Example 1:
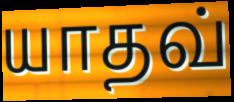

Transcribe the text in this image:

யாதவ்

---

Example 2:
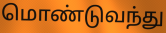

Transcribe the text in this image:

மொண்டுவந்து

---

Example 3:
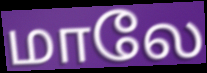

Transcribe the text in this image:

மாலே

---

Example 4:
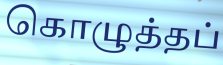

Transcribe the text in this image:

கொழுத்தப்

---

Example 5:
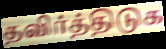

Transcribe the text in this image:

தவிர்த்திடுக